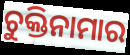
ଚୁକ୍ତିନାମାର